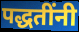
पद्धतींनी